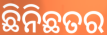
ଛିନିଛତର